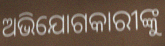
ଅଭିଯୋଗକାରୀଙ୍କୁ